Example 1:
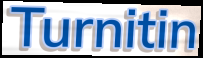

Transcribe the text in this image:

Turnitin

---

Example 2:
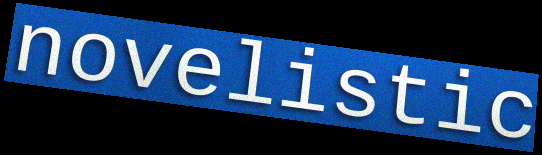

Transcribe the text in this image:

novelistic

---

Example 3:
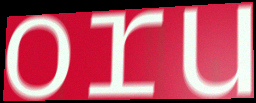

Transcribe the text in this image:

oru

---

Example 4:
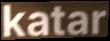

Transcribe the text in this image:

katar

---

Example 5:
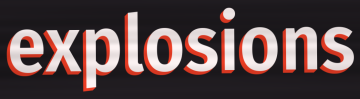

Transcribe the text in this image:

explosions